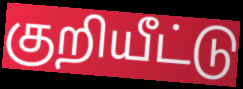
குறியீட்டு